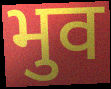
भुव